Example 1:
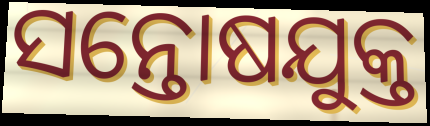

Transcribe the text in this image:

ସନ୍ତୋଷଯୁକ୍ତ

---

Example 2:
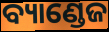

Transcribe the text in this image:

ବ୍ୟାଣ୍ଡେଜ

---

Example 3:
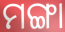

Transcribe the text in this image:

ମଙ୍ଗା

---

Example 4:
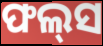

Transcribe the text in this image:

ଫଲ୍‍ସ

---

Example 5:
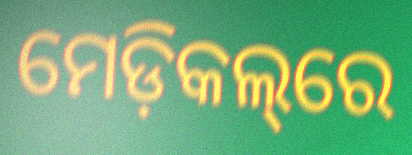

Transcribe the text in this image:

ମେଡ଼ିକଲ୍‌ରେ